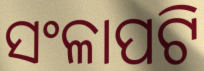
ସଂଳାପଟି